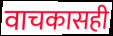
वाचकासही